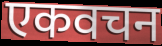
एकवचन